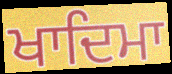
ਖਾਦਿਮਾ